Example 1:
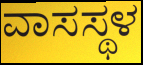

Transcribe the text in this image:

ವಾಸಸ್ಥಳ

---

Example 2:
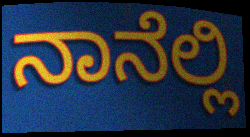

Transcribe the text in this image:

ನಾನೆಲ್ಲಿ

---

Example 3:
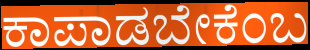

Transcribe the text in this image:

ಕಾಪಾಡಬೇಕೆಂಬ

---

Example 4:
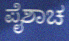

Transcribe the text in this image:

ಪೈಶಾಚ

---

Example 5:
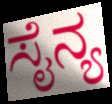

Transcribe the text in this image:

ಸೈನ್ಯ